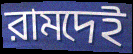
রামদেই